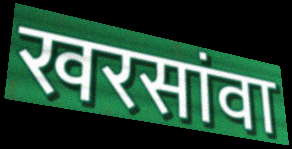
खरसांवा